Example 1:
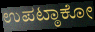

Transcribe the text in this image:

ಉಪಟ್ಠಾಕೋ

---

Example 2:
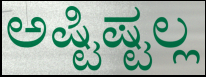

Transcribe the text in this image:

ಅಷ್ಟಿಷ್ಟಲ್ಲ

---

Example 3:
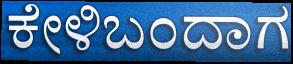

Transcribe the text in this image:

ಕೇಳಿಬಂದಾಗ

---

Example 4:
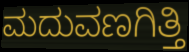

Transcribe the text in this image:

ಮದುವಣಗಿತ್ತಿ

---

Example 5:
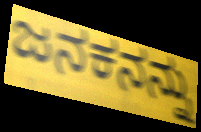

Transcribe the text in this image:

ಜನಕನನ್ನು